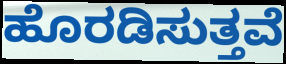
ಹೊರಡಿಸುತ್ತವೆ